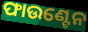
ଫାଉଣ୍ଟେନ